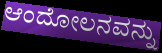
ಆಂದೋಲನವನ್ನು